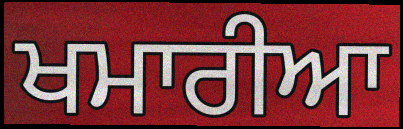
ਖਮਾਰੀਆ